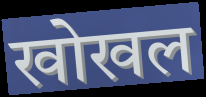
खोखल